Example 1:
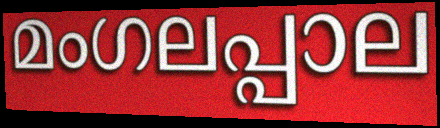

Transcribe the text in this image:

മംഗലപ്പാല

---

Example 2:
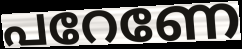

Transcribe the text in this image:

പറേണേ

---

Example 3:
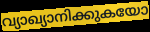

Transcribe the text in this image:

വ്യാഖ്യാനിക്കുകയോ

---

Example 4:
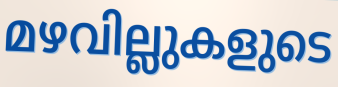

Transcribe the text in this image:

മഴവില്ലുകളുടെ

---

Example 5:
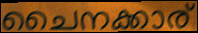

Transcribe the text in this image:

ചൈനക്കാര്